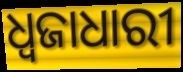
ଧ୍ଵଜାଧାରୀ